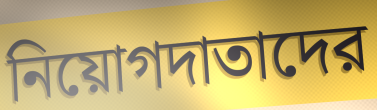
নিয়োগদাতাদের